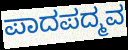
ಪಾದಪದ್ಮವ